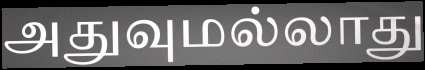
அதுவுமல்லாது